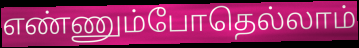
எண்ணும்போதெல்லாம்